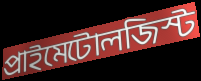
প্রাইমেটোলজিস্ট